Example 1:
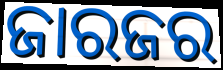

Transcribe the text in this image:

ଜାରଜର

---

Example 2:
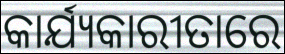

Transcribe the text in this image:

କାର୍ଯ୍ୟକାରୀତାରେ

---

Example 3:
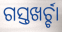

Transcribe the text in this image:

ଗସ୍ତଖର୍ଚ୍ଚା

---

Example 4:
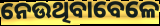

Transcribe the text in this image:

ନେଉଥିବାବେଳେ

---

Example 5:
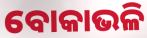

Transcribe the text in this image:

ବୋକାଭଳି